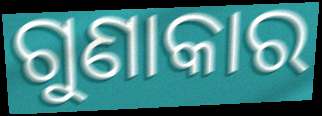
ଗୁଣାକାର